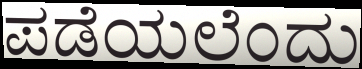
ಪಡೆಯಲೆಂದು